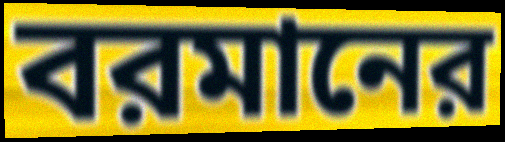
বরমানের